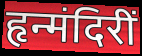
हृन्मंदिरीं